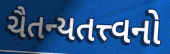
ચૈતન્યતત્ત્વનો